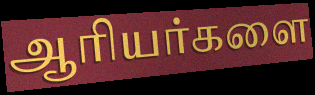
ஆரியர்களை